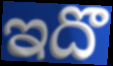
ఇదొ